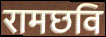
रामछवि